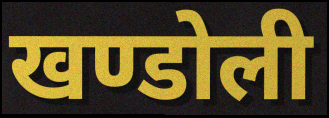
खण्डोली